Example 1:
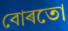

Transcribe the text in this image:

বোৰতো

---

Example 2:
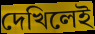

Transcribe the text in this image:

দেখিলেই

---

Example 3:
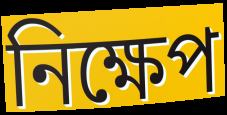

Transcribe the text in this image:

নিক্ষেপ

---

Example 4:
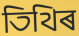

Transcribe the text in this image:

তিথিৰ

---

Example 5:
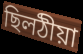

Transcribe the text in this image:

ছিলঠীয়া